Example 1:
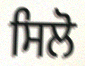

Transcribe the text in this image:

ਸਿਲੋ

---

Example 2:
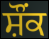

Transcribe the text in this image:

ਸ਼ੌੰਕ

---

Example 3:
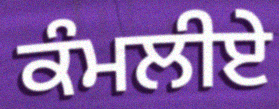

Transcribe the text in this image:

ਕੰਮਲੀਏ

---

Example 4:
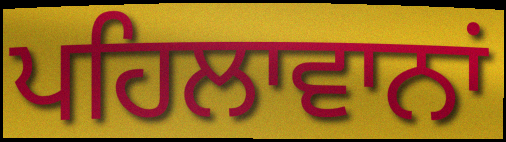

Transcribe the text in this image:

ਪਹਿਲਾਵਾਨਾਂ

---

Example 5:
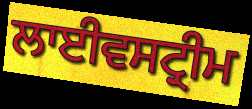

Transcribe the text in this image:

ਲਾਈਵਸਟ੍ਰੀਮ